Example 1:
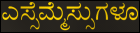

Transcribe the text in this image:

ಎಸ್ಸೆಮ್ಮೆಸ್ಸುಗಳೂ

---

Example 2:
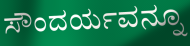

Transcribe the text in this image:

ಸೌಂದರ್ಯವನ್ನೂ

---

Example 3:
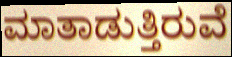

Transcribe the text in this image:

ಮಾತಾಡುತ್ತಿರುವೆ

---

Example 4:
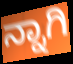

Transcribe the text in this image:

ನ್ನಾಗಿ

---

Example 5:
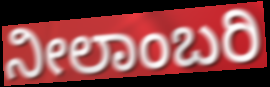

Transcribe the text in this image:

ನೀಲಾಂಬರಿ